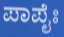
ಪಾಪೈಃ